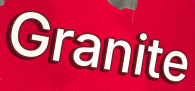
Granite